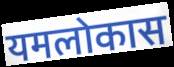
यमलोकास